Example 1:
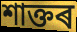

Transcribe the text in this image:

শাক্তৰ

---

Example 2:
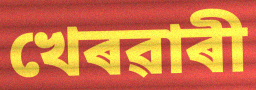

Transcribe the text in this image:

খেৰৱাৰী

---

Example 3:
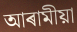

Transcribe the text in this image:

আৰামীয়া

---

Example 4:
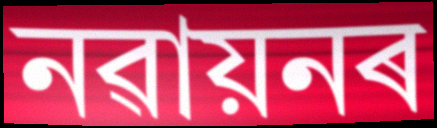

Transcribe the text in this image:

নৱায়নৰ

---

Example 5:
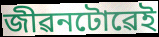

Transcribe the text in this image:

জীৱনটোৱেই